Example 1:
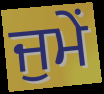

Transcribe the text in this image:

ਜੁਮੇਂ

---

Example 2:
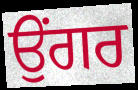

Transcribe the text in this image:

ਉਂਗਰ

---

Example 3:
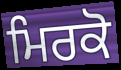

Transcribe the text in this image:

ਮਿਰਕੋ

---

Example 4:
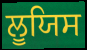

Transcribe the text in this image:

ਲੂਯਿਸ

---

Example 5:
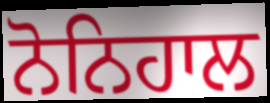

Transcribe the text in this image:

ਨੋਨਿਹਾਲ